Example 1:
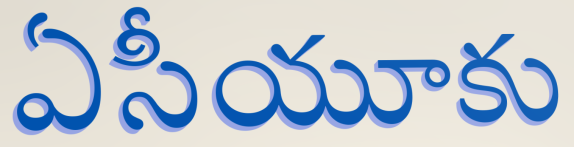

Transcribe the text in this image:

ఏసీయూకు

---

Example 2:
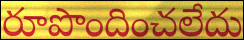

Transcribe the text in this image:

రూపొందించలేదు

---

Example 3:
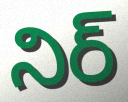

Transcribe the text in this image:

నిర్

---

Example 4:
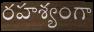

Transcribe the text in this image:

రహశ్యంగా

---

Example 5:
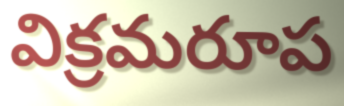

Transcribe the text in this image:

విక్రమరూప